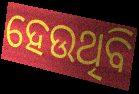
ହେଉଥିବି